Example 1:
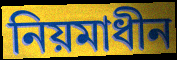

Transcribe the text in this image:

নিয়মাধীন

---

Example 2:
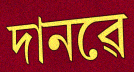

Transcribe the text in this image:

দানৱে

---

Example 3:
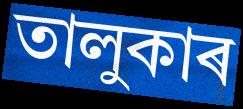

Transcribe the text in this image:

তালুকাৰ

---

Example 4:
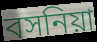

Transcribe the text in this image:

বসনিয়া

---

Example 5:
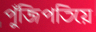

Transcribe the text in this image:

পুঁজিপতিয়ে